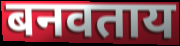
बनवताय